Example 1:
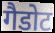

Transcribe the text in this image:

गैडोट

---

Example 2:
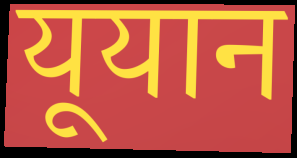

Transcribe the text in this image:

यूयान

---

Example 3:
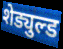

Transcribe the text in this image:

शेड्युल्ड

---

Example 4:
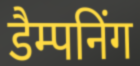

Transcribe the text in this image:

डैम्पनिंग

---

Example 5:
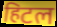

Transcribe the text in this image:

हिटल